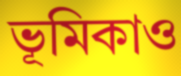
ভূমিকাও